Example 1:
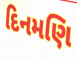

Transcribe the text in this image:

દિનમણિ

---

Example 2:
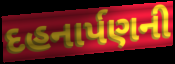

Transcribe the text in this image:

દહનાર્પણની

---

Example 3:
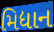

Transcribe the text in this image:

મિદ્યાન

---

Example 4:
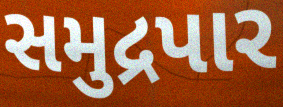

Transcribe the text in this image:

સમુદ્રપાર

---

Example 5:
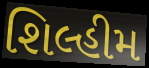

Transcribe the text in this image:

શિલ્હીમ